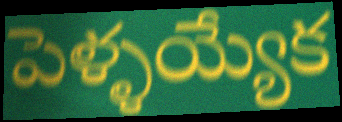
పెళ్ళయ్యేక